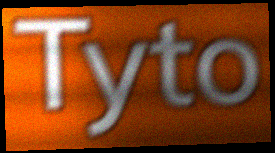
Tyto